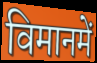
विमानमें